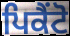
ਪਿਕੈਂਟੋ